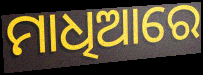
ମାଧିଆରେ